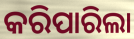
କରିପାରିଲା